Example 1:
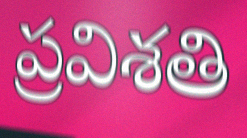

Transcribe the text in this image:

ప్రవిశతి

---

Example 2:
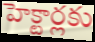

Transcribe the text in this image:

హెక్టార్లకు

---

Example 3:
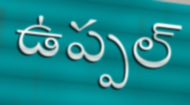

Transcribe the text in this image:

ఉప్పల్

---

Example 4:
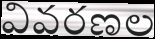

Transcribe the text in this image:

వివరణల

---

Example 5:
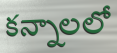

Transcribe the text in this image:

కన్నాలలో